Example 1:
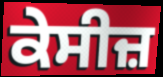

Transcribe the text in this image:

ਕੇਸੀਜ਼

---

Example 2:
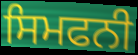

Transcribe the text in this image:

ਸਿਮਫਨੀ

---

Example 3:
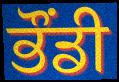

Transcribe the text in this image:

ਭੌਂਡੀ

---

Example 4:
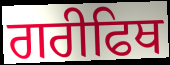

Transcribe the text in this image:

ਗਰੀਫਿਥ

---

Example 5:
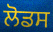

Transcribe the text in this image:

ਲੋਡਸ